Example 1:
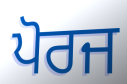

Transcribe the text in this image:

ਪੋਰਜ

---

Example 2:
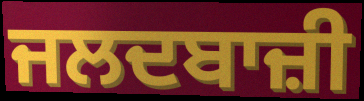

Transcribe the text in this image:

ਜਲਦਬਾਜ਼ੀ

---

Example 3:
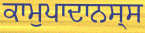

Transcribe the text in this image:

ਕਾਮੁਪਾਦਾਨਸ੍ਸ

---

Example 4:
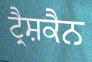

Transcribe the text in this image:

ਟ੍ਰੈਸ਼ਕੈਨ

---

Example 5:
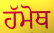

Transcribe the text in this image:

ਹੱਮੋਥ